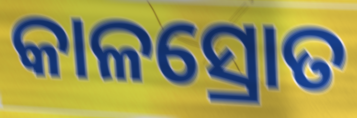
କାଳସ୍ରୋତ